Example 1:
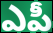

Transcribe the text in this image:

ఎపీ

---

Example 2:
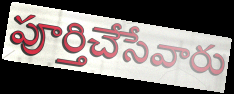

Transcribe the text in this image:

పూర్తిచేసేవారు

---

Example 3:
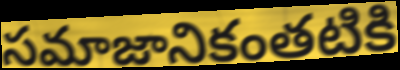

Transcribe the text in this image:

సమాజానికంతటికి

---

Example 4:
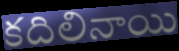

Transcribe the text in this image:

కదిలినాయి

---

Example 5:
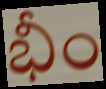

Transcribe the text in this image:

భీం